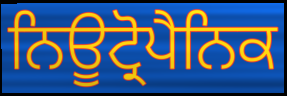
ਨਿਊਟ੍ਰੋਪੈਨਿਕ